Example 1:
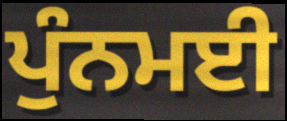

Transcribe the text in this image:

ਪੁੰਨਮਈ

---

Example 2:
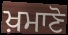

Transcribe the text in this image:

ਖ਼ਮਾਣੋ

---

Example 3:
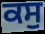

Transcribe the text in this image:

ਕਸੁ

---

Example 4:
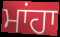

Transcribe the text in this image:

ਮਾਂਹਾ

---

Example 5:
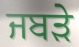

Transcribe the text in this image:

ਜਬੜੇ